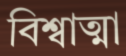
বিশ্বাত্মা